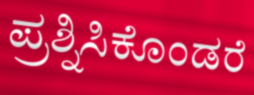
ಪ್ರಶ್ನಿಸಿಕೊಂಡರೆ